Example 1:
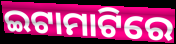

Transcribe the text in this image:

ଇଟାମାଟିରେ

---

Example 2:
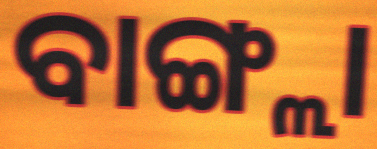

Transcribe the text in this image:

ବାଙ୍ଗ୍ଲା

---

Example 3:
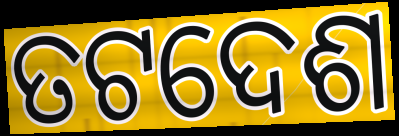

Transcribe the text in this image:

ତଟଦେଶ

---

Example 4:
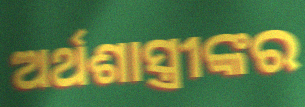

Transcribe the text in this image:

ଅର୍ଥଶାସ୍ତ୍ରୀଙ୍କର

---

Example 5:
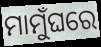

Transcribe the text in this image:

ମାମୁଁଘରେ